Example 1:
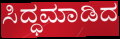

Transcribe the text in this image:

ಸಿದ್ಧಮಾಡಿದ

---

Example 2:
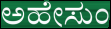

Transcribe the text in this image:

ಅಹೇಸುಂ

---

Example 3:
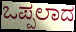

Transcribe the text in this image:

ಒಪ್ಪಲಾದ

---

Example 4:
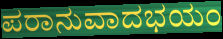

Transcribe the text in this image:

ಪರಾನುವಾದಭಯಂ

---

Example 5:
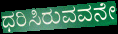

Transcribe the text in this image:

ಧರಿಸಿರುವವನೇ